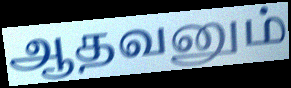
ஆதவனும்